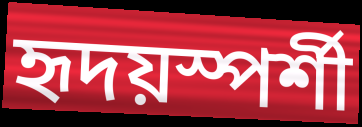
হৃদয়স্পর্শী